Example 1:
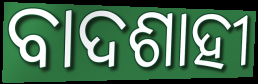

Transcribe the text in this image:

ବାଦଶାହୀ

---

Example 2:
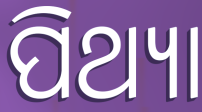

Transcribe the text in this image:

ପିଥ୍ୟା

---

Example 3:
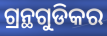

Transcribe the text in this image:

ଗ୍ରନ୍ଥଗୁଡିକର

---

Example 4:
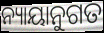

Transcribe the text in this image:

ନ୍ୟାୟାନୁଗତ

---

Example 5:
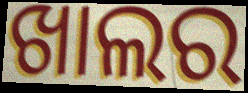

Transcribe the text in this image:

ଖାଲର